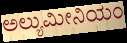
ಅಲ್ಯುಮೀನಿಯಂ